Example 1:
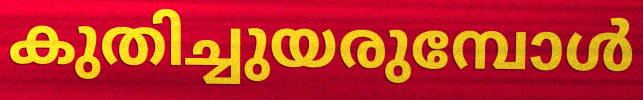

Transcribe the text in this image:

കുതിച്ചുയരുമ്പോൾ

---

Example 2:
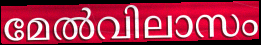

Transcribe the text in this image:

മേൽവിലാസം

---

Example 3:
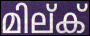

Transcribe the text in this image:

മില്ക്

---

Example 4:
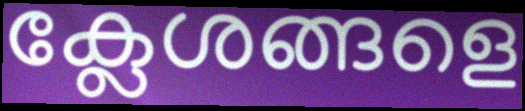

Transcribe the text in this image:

ക്ലേശങ്ങളെ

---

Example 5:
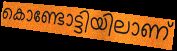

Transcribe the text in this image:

കൊണ്ടോട്ടിയിലാണ്